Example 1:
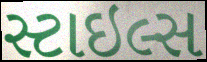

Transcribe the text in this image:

સ્ટાઇલ્સ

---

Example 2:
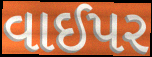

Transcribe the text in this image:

વાઈપર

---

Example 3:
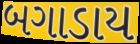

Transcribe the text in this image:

બગાડાય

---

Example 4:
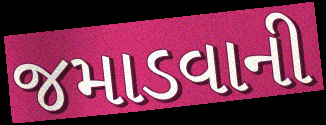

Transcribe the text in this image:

જમાડવાની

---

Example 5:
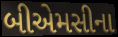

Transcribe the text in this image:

બીએમસીના